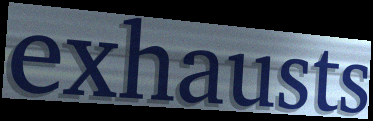
exhausts